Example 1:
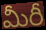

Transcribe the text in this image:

మీరీ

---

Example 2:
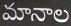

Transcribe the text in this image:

మానాల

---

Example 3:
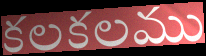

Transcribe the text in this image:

కలకలము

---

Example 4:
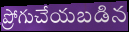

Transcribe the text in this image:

ప్రోగుచేయబడిన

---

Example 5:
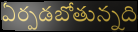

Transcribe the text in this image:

ఏర్పడబోతున్నది